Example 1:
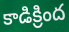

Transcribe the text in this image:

కాడిక్రింద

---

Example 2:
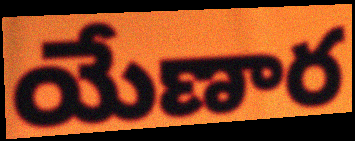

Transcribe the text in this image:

యేణార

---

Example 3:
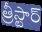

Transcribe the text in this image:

త్రీస్టార్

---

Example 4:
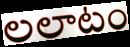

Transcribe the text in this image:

లలాటం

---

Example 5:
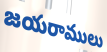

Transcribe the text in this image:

జయరాములు